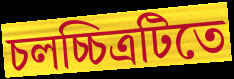
চলচ্চিত্রটিতে